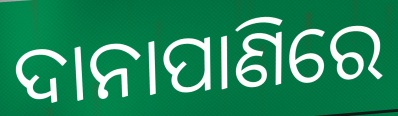
ଦାନାପାଣିରେ